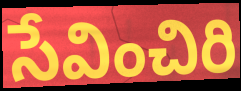
సేవించిరి